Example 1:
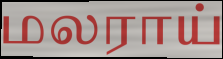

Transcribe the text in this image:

மலராய்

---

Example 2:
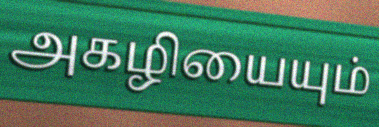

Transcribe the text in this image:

அகழியையும்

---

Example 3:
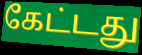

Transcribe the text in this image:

கேட்டது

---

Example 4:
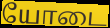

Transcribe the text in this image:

யோடை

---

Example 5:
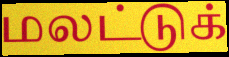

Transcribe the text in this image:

மலட்டுக்